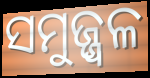
ସମୁଜ୍ଜ୍ୱଳ